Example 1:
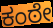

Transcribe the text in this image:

ಕಂಠೇ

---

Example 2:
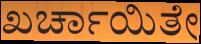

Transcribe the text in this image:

ಖರ್ಚಾಯಿತೇ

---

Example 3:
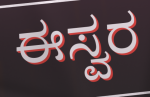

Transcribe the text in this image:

ಈಸ್ವರ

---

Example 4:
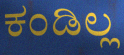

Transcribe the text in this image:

ಕಂಡಿಲ್ಲ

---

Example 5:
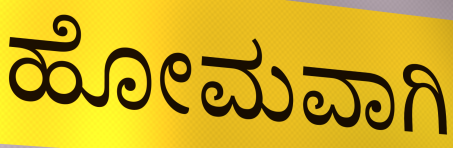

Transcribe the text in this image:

ಹೋಮವಾಗಿ